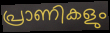
പ്രാണികളും